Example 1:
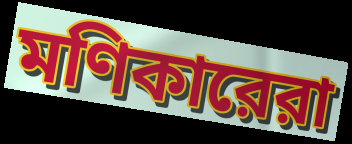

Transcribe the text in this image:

মণিকারেরা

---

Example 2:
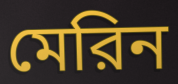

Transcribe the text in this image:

মেরিন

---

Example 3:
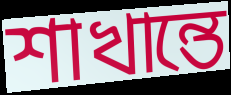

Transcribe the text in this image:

শাখান্তে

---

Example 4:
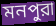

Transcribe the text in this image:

মনপুরা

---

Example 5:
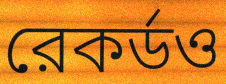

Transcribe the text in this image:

রেকর্ডও